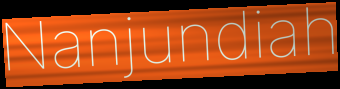
Nanjundiah